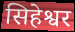
सिहेश्वर